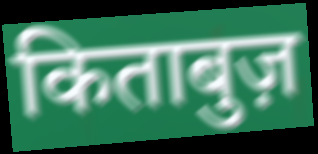
किताबुज़